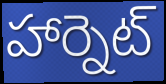
హార్నెట్